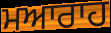
ਮਆਰਾਹ